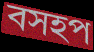
বসহপ